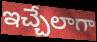
ఇచ్చేలాగా